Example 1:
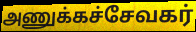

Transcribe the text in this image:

அணுக்கச்சேவகர்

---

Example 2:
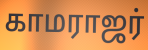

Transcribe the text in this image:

காமராஜர்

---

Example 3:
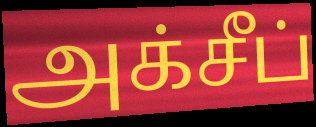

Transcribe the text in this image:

அக்சீப்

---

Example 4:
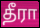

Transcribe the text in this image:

தீரா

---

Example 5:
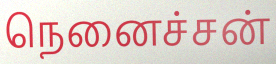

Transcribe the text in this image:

நெனைச்சன்